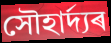
সৌহাৰ্দ্যৰ